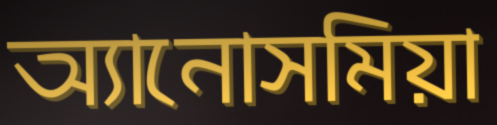
অ্যানোসমিয়া